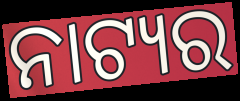
ନାଟ୍ୟର